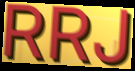
RRJ